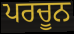
ਪਰਚੂਨ